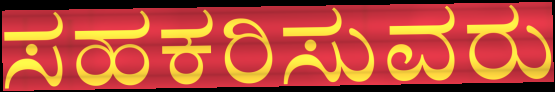
ಸಹಕರಿಸುವರು